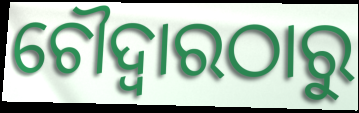
ଚୌଦ୍ୱାରଠାରୁ